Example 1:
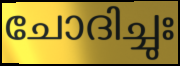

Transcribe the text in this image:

ചോദിച്ചുഃ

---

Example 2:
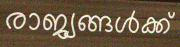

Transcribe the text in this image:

രാജ്യങ്ങൾക്ക്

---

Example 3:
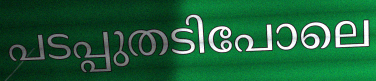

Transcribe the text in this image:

പടപ്പുതടിപോലെ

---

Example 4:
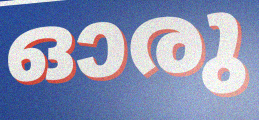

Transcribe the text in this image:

ഓരു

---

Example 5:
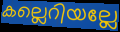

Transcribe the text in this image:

കല്ലെറിയല്ലേ